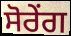
ਸੋਰੇਂਗ